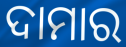
ଦାମାର